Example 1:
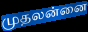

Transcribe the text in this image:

முதலன்னை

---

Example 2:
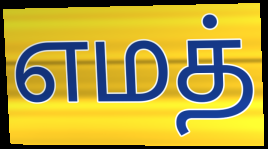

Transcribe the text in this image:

எமத்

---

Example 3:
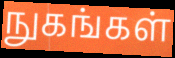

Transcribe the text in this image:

நுகங்கள்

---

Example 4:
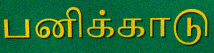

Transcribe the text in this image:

பனிக்காடு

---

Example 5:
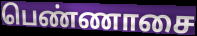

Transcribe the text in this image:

பெண்ணாசை